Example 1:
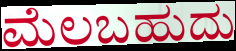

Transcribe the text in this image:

ಮೆಲಬಹುದು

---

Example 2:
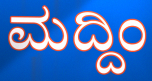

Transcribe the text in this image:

ಮದ್ದಿಂ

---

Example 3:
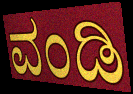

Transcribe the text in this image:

ವಂಡಿ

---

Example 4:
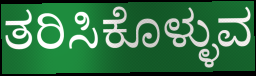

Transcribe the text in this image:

ತರಿಸಿಕೊಳ್ಳುವ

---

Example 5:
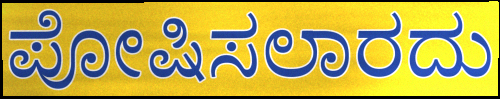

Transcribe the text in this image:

ಪೋಷಿಸಲಾರದು